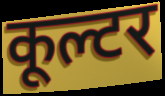
कूल्टर